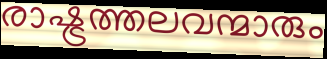
രാഷ്ട്രത്തലവന്മാരും